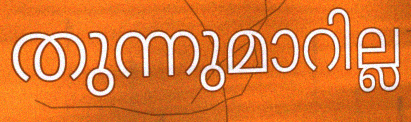
തുന്നുമാറില്ല